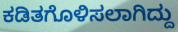
ಕಡಿತಗೊಳಿಸಲಾಗಿದ್ದು